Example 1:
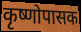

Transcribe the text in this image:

कृष्णोपासक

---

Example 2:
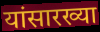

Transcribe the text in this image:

यांसारख्‍या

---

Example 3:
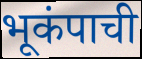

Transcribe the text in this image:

भूकंपाची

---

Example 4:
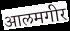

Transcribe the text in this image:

आलमगीर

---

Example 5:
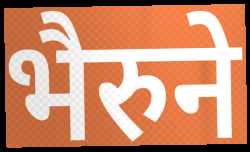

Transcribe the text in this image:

भैरुने